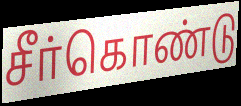
சீர்கொண்டு